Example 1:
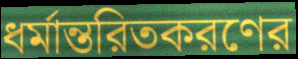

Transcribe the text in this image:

ধর্মান্তরিতকরণের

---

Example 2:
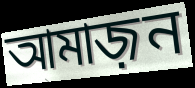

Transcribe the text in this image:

আমাজ়ন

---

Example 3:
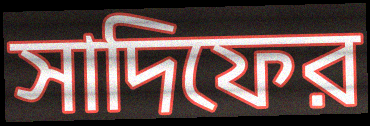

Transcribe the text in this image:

সাদিফের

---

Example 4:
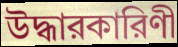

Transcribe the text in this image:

উদ্ধারকারিণী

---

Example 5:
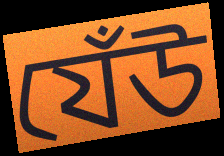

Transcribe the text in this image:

যেঁউ